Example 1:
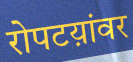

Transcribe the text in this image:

रोपटय़ांवर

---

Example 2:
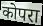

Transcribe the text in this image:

कोपरा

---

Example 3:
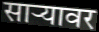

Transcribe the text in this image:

साऱ्यावर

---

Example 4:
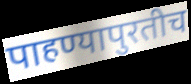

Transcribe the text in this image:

पाहण्यापुरतीच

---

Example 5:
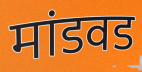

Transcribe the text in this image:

मांडवड